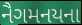
નૈગમનયના